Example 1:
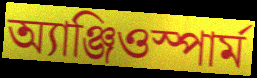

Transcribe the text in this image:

অ্যাঞ্জিওস্পার্ম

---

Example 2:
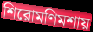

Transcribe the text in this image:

শিরোমণিমশায়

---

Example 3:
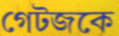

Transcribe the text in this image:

গেটজকে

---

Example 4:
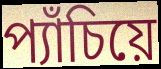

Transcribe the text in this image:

প্যাঁচিয়ে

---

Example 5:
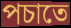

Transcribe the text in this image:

পচাতে